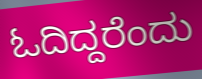
ಓದಿದ್ದರೆಂದು